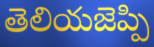
తెలియజెప్పి